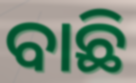
ବାଛି